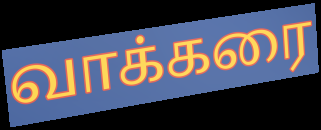
வாக்கரை